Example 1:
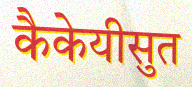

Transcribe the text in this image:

कैकेयीसुत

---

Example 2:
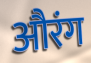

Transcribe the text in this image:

औरंग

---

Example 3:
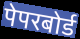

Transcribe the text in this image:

पेपरबोर्ड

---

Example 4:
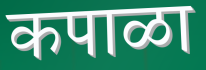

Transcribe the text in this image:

कपाळा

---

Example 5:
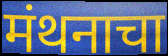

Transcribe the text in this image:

मंथनाचा